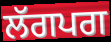
ਲੱਗਪਗ